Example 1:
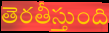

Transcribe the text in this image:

తెరతీస్తుంది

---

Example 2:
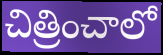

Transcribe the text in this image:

చిత్రించాలో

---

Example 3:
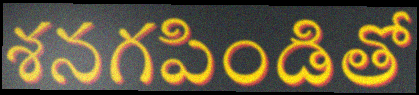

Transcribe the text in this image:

శనగపిండితో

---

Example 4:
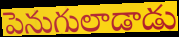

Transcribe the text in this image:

పెనుగులాడాడు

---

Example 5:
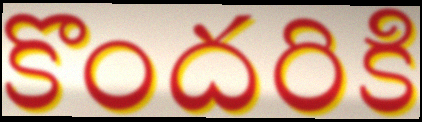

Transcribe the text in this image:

కొందరికి